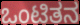
ಒಂಟಿತನ